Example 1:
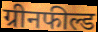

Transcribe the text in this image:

ग्रीनफील्‍ड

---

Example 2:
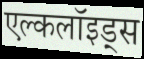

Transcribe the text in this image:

एल्कलॉइड्स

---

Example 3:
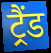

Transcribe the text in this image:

ट्रैंड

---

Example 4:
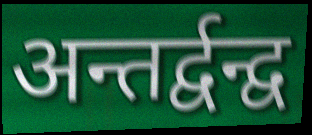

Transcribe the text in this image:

अन्तर्द्वन्द्व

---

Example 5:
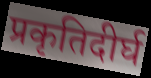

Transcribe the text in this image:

प्रकृतिदीर्घ